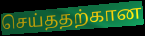
செய்ததற்கான